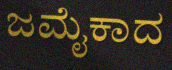
ಜಮೈಕಾದ